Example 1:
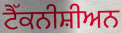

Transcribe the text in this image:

ਟੈੱਕਨੀਸ਼ੀਅਨ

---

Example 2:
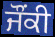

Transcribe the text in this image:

ਜੌਂਕੀ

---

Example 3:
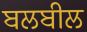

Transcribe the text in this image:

ਬਲਬੀਲ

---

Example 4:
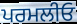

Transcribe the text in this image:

ਪਰਮਲੀਓ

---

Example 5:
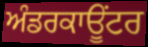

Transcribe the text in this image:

ਅੰਡਰਕਾਊਂਟਰ